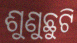
ଶୁଣୁଛୁଟି